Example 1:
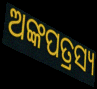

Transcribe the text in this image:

ଅଙ୍କପତ୍ରସ୍ୟ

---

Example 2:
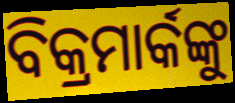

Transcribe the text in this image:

ବିକ୍ରମାର୍କଙ୍କୁ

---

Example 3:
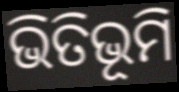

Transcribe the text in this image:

ଭିତିଭୂମି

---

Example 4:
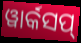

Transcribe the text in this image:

ୱାର୍କସପ୍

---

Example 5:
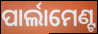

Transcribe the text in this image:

ପାର୍ଲାମେଣ୍ଟ